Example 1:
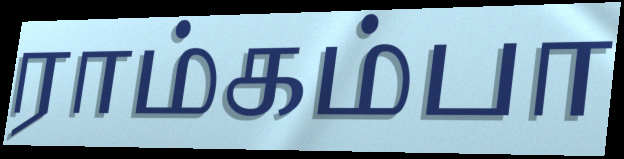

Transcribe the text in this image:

ராம்கம்பா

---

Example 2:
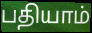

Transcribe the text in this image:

பதியாம்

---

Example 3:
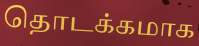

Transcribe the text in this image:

தொடக்கமாக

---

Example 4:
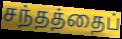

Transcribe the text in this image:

சந்தத்தைப்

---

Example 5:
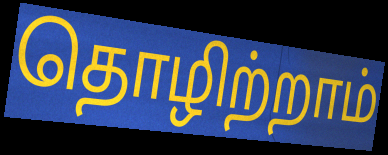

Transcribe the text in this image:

தொழிற்றாம்